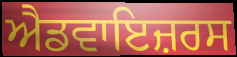
ਐਡਵਾਇਜ਼ਰਸ